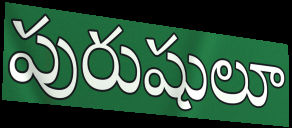
పురుషులూ